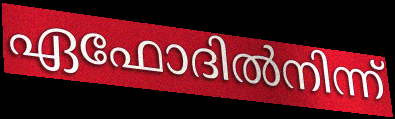
ഏഫോദിൽനിന്ന്